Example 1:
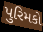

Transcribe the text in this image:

પુરિમકો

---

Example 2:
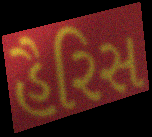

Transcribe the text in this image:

હૈરિસ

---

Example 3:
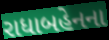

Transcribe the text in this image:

રાધાબહેનના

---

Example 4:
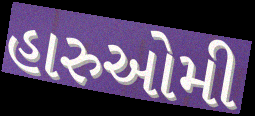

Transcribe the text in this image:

હારુઓમી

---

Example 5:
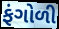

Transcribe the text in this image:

ફંગોળી